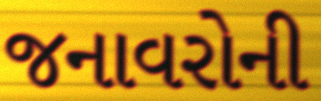
જનાવરોની